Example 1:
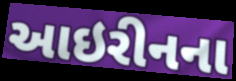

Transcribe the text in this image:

આઇરીનના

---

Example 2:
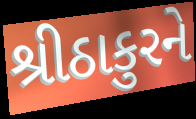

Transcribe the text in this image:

શ્રીઠાકુરને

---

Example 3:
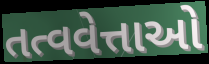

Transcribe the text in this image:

તત્વવેત્તાઓ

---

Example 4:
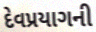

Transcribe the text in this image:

દેવપ્રયાગની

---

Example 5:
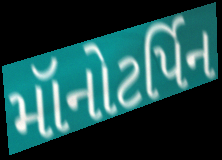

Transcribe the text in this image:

મૉનોટર્પિન